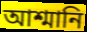
আশ্মানি